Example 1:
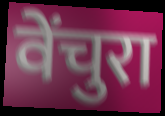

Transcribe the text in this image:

वेंचुरा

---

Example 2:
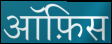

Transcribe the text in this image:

ऑफ़िस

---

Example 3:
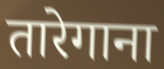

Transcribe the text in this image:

तारेगाना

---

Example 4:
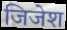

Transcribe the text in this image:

जिजेश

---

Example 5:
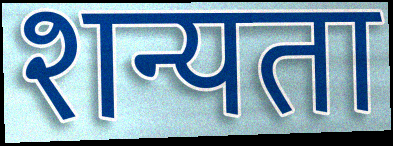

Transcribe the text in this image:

शन्यता